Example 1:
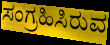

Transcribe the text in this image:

ಸಂಗ್ರಹಿಸಿರುವ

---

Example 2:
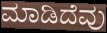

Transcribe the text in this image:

ಮಾಡಿದೆವು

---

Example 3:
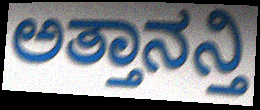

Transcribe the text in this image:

ಅತ್ತಾನನ್ತಿ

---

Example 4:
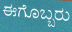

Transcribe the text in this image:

ಈಗೊಬ್ಬರು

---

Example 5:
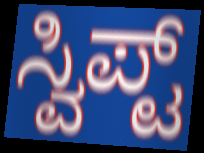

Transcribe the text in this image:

ಸ್ವಿಪ್ಟ್